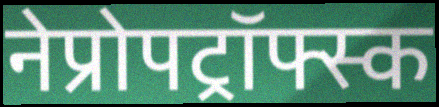
नेप्रोपट्रॉफ्स्क